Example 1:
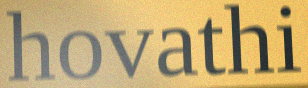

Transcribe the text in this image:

hovathi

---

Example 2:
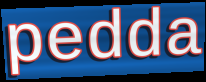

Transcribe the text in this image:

pedda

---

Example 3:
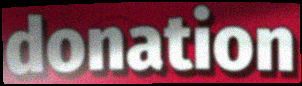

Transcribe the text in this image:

donation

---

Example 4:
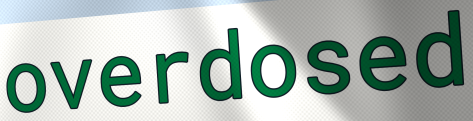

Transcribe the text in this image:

overdosed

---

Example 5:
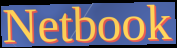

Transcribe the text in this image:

Netbook